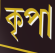
কৃপা